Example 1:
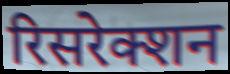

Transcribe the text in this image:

रिसरेक्शन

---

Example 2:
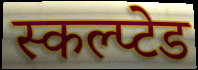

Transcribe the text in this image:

स्कल्प्टेड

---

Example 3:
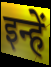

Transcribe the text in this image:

इन्‍हें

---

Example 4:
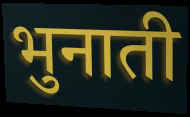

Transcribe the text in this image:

भुनाती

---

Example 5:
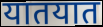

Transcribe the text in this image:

यातयात